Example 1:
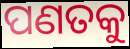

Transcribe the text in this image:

ପଣତକୁ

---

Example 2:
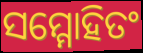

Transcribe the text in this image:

ସମ୍ମୋହିତଂ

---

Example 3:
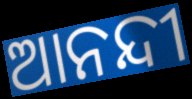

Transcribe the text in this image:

ଆନନ୍ଦୀ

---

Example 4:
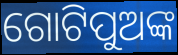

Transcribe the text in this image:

ଗୋଟିପୁଅଙ୍କ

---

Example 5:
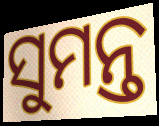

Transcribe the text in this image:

ସୁମନ୍ତ